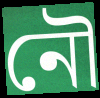
নৌ